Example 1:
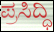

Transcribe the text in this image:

ಪ್ರಸಿದ್ಧಿ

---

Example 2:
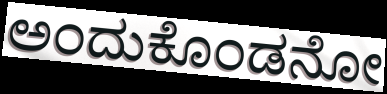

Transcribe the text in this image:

ಅಂದುಕೊಂಡನೋ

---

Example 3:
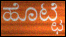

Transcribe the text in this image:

ಹೊಟ್ಟೆ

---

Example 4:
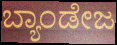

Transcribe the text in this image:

ಬ್ಯಾಂಡೇಜ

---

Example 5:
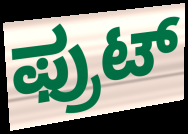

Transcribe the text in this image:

ಫ್ರುಟ್